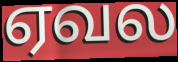
ஏவல